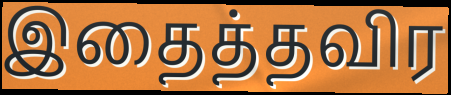
இதைத்தவிர